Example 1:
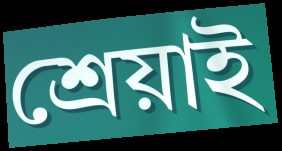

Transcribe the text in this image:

শ্ৰেয়াই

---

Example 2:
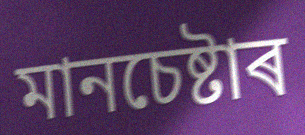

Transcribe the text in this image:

মানচেষ্টাৰ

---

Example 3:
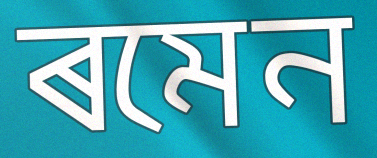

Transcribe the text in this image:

ৰমেন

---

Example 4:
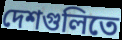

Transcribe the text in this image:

দেশগুলিতে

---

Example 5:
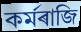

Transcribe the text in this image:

কৰ্মৰাজি